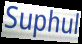
Suphul